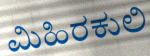
ಮಿಹಿರಕುಲಿ